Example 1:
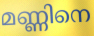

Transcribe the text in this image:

മണ്ണിനെ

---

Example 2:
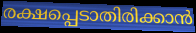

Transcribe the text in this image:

രക്ഷപ്പെടാതിരിക്കാൻ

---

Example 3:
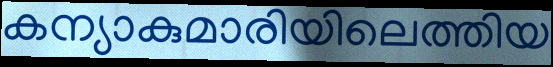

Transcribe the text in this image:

കന്യാകുമാരിയിലെത്തിയ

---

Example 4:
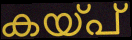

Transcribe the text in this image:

കയ്പ്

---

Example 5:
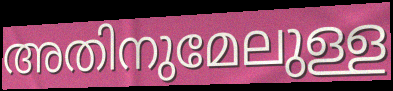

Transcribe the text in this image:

അതിനുമേലുള്ള